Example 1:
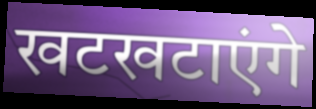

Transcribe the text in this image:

खटखटाएंगे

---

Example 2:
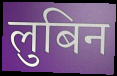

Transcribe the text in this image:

लुबिन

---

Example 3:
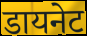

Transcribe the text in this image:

डायनेट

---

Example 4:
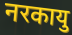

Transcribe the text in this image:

नरकायु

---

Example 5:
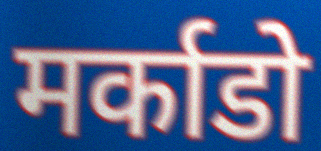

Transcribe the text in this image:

मर्काडो